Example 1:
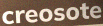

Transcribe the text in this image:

creosote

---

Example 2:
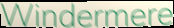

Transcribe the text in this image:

Windermere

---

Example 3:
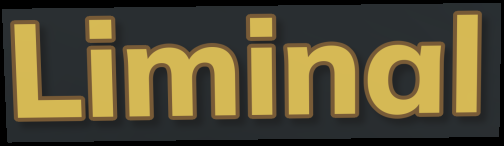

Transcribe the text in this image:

Liminal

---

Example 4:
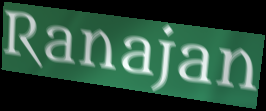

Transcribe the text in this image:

Ranajan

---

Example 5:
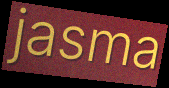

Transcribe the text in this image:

jasma